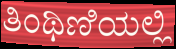
ತಿಂಥಿಣಿಯಲ್ಲಿ